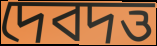
দেবদত্ত